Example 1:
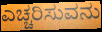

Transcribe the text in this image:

ಎಚ್ಚರಿಸುವನು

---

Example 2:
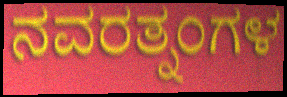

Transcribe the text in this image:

ನವರತ್ನಂಗಳ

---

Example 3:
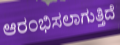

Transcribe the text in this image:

ಆರಂಭಿಸಲಾಗುತ್ತಿದೆ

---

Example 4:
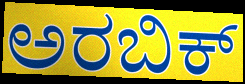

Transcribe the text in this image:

ಅರಬಿಕ್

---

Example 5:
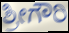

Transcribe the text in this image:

ಶ್ರೀಗೌರಿ